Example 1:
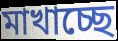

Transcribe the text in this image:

মাখাচ্ছে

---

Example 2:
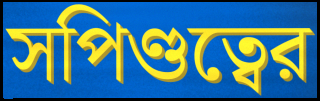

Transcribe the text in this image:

সপিণ্ডত্বের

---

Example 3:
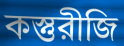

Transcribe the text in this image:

কস্তুরীজি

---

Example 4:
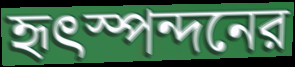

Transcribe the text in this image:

হৃৎস্পন্দনের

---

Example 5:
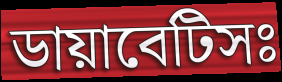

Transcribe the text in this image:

ডায়াবেটিসঃ